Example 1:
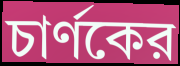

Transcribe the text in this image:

চার্ণকের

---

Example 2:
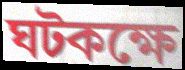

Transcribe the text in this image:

ঘটকক্ষে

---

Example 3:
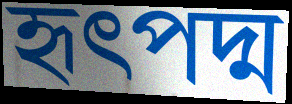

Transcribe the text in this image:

হৃৎপদ্ম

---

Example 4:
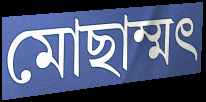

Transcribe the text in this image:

মোছাম্মৎ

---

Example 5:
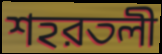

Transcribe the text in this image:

শহরতলী